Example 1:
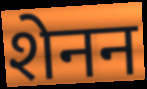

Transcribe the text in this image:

शेनन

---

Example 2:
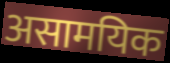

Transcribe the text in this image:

असामयिक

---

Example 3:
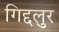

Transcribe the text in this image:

गिद्दलुर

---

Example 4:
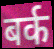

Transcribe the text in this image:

बर्क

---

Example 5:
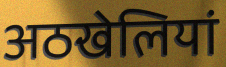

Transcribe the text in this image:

अठखेलियां